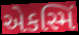
એકસ્મિં